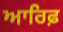
ਆਰਿਫ਼